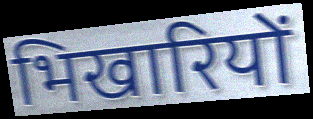
भिखारियों